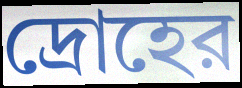
দ্রোহের